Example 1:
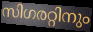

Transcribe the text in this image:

സിഗരറ്റിനും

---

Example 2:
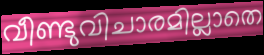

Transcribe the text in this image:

വീണ്ടുവിചാരമില്ലാതെ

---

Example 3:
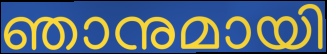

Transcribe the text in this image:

ഞാനുമായി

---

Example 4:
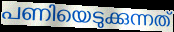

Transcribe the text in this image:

പണിയെടുക്കുന്നത്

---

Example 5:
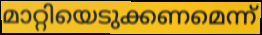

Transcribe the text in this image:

മാറ്റിയെടുക്കണമെന്ന്